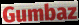
Gumbaz